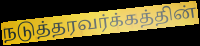
நடுத்தரவர்க்கத்தின்